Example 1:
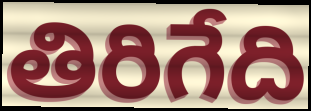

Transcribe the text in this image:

తిరిగేది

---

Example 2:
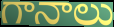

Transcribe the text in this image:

గానాలు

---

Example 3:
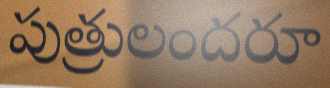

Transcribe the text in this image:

పుత్రులందరూ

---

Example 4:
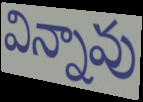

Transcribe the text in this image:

విన్నావు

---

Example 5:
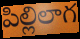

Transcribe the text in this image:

పిల్లిలాగ